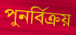
পুনর্বিক্রয়